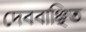
দেববাঞ্ছিত